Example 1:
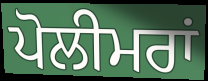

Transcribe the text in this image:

ਪੋਲੀਮਰਾਂ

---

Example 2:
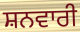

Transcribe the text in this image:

ਸ਼ਨਵਾਰੀ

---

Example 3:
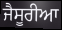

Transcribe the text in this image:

ਜੈਸੂਰੀਆ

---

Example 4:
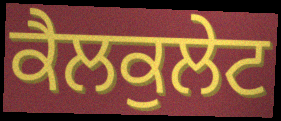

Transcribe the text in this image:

ਕੈਲਕੁਲੇਟ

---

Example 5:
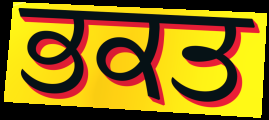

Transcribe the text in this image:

ਭਕਤ